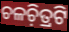
ଚଳଚ଼ିତ୍ରଟି